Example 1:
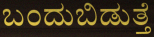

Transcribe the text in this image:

ಬಂದುಬಿಡುತ್ತೆ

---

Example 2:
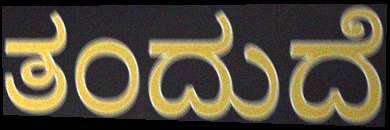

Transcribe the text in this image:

ತಂದುದೆ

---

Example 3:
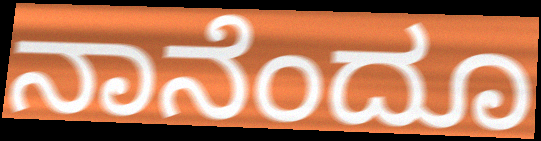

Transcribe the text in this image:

ನಾನೆಂದೂ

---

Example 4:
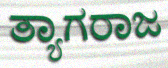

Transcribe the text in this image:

ತ್ಯಾಗರಾಜ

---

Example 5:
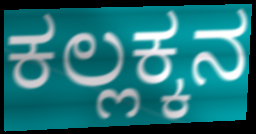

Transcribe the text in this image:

ಕಲ್ಲಕ್ಕನ